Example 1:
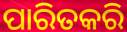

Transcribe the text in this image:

ପାରିତକରି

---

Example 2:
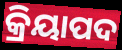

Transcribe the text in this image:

କ୍ରିୟାପଦ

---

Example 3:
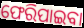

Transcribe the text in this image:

ଫେରିପାଇବା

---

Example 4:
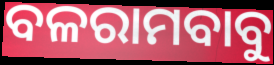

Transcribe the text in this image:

ବଳରାମବାବୁ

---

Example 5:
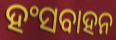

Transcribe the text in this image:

ହଂସବାହନ